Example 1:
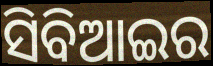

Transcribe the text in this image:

ସିବିଆଇର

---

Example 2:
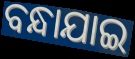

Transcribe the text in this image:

ବନ୍ଧାଯାଇ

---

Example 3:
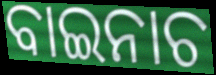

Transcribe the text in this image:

ବାଇନାଚ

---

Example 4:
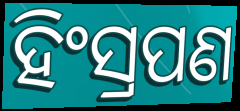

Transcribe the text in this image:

ହିଂସ୍ରପଣ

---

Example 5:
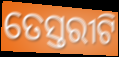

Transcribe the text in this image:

ତେସ୍ତରୀଟି